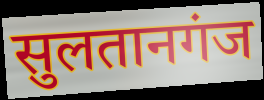
सुलतानगंज